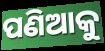
ପଣିଆକୁ